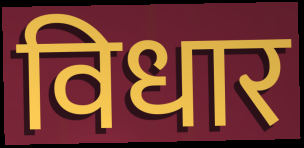
विधार